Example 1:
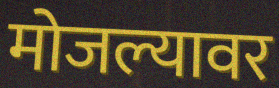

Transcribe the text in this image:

मोजल्यावर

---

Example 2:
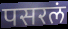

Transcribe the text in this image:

पसरलं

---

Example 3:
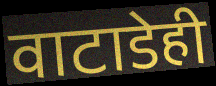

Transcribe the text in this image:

वाटाडेही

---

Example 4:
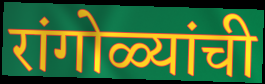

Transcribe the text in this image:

रांगोळ्यांची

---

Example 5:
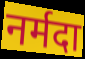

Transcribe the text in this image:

नर्मदा